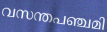
വസന്തപഞ്ചമി